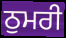
ਠੁਮਰੀ